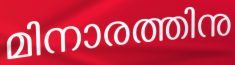
മിനാരത്തിനു